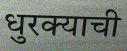
धुरक्याची